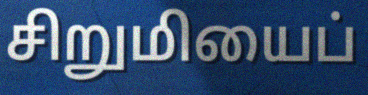
சிறுமியைப்